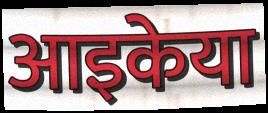
आइकेया